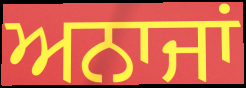
ਅਨਾਜਾਂ